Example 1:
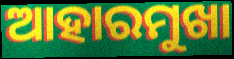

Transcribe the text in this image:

ଆହାରମୁଖା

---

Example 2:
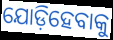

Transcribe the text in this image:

ଯୋଡ଼ିହେବାକୁ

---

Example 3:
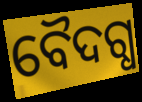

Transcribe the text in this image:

ବୈଦଗ୍ଧ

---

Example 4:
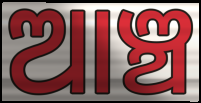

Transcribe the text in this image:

ଆଞ୍ଚ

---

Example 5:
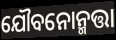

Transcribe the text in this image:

ଯୌବନୋନ୍ମତ୍ତା